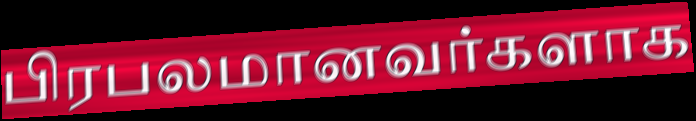
பிரபலமானவர்களாக